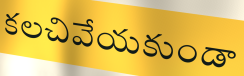
కలచివేయకుండా